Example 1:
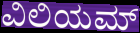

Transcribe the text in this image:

ವಿಲಿಯಮ್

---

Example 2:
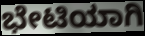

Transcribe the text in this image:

ಭೇಟಿಯಾಗಿ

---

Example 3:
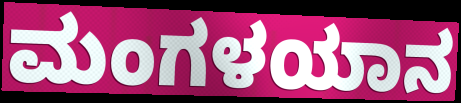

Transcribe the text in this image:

ಮಂಗಳಯಾನ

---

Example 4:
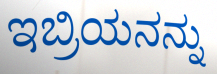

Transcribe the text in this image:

ಇಬ್ರಿಯನನ್ನು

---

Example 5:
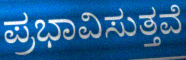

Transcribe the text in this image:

ಪ್ರಭಾವಿಸುತ್ತವೆ